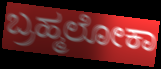
ಬ್ರಹ್ಮಲೋಕಾ